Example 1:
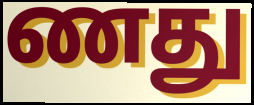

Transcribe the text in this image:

ணது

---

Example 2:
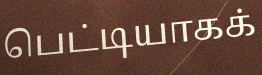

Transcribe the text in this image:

பெட்டியாகக்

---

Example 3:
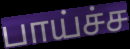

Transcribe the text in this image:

பாய்ச்ச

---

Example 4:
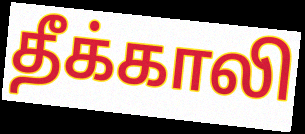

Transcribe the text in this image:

தீக்காலி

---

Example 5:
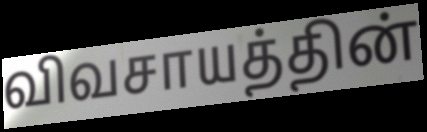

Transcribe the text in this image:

விவசாயத்தின்